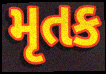
મૃતક